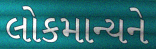
લોકમાન્યને